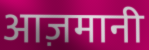
आज़मानी